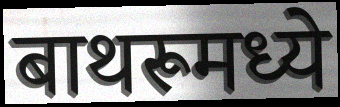
बाथरूमध्ये